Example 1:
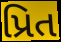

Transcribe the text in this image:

પ્રિત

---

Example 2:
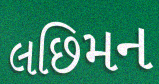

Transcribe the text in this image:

લછિમન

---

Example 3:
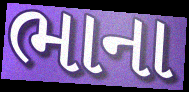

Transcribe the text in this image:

ભાના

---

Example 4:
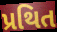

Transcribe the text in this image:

પ્રથિત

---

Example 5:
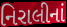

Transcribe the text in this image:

નિરાલીનાં